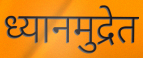
ध्यानमुद्रेत